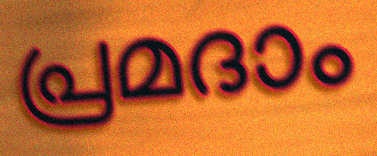
പ്രമദാം